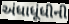
અંધાધૂંધીની